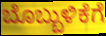
ಬೊಬ್ಬುಳಿಕೆಗೆ